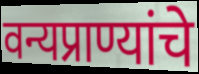
वन्यप्राण्यांचे